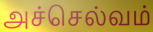
அச்செல்வம்